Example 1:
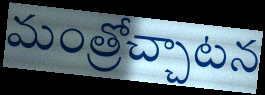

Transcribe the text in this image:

మంత్రోచ్చాటన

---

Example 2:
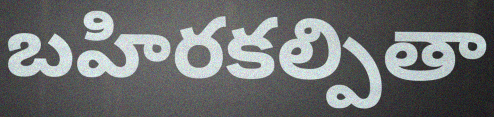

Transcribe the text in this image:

బహిరకల్పితా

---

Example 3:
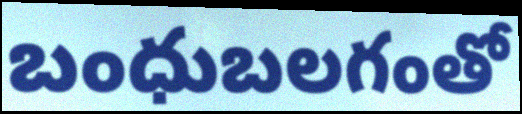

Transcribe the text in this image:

బంధుబలగంతో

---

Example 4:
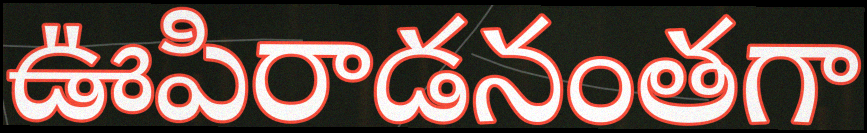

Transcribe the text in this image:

ఊపిరాడనంతగా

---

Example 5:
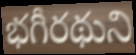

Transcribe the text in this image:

భగీరథుని